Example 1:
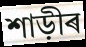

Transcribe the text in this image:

শাড়ীৰ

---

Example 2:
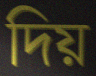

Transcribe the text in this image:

দিয়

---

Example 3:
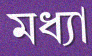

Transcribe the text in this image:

মধ্যা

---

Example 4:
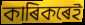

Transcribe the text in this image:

কাৰিকৰেই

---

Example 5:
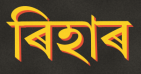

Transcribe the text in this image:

ৰিহাৰ